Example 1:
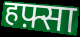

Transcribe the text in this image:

हफ़्सा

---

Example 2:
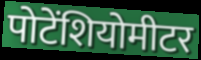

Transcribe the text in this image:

पोटेंशियोमीटर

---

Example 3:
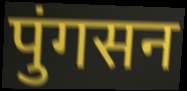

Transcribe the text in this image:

पुंगसन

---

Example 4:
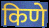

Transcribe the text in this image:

किणे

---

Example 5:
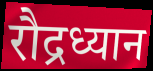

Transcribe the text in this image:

रौद्रध्यान